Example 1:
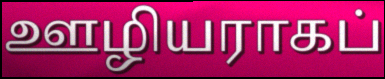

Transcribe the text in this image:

ஊழியராகப்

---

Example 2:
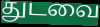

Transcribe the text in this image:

துடவை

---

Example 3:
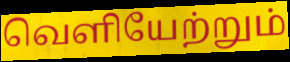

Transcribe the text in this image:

வெளியேற்றும்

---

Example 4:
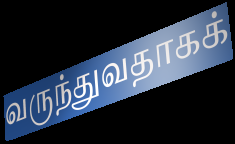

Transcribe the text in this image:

வருந்துவதாகக்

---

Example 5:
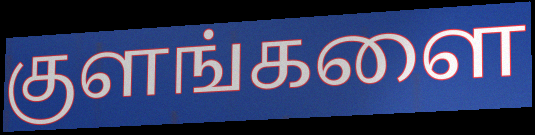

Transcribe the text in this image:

குளங்களை